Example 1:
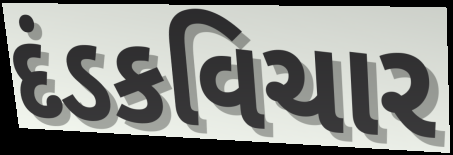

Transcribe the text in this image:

દંડકવિચાર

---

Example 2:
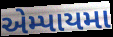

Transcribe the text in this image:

એમ્પાયમા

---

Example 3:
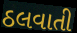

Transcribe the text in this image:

ઠલવાતી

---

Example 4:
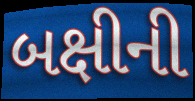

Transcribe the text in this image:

બક્ષીની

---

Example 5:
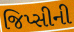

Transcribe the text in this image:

જિપ્સીની